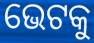
ଭେଟକୁ